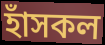
হাঁসকল